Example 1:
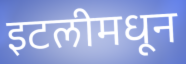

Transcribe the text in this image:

इटलीमधून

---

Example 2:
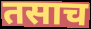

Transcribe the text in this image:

तसाच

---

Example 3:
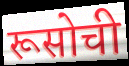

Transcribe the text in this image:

रूसोची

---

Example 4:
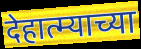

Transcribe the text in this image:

देहात्म्याच्या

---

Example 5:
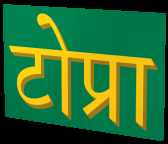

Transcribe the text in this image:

टोप्रा